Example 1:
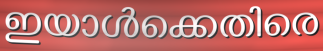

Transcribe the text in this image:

ഇയാൾക്കെതിരെ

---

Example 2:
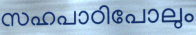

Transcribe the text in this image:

സഹപാഠിപോലും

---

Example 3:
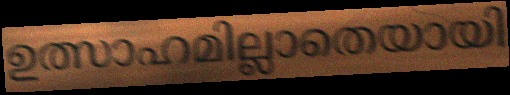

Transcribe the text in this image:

ഉത്സാഹമില്ലാതെയായി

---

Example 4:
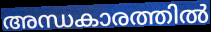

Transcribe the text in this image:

അന്ധകാരത്തിൽ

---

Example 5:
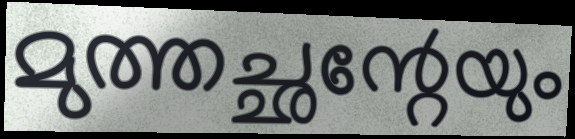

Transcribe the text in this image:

മുത്തച്ഛന്റേയും